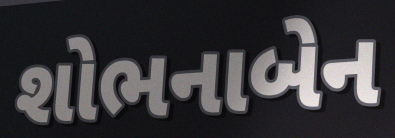
શોભનાબેન